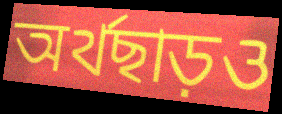
অর্থছাড়ও